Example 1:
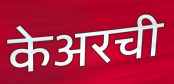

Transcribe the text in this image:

केअरची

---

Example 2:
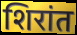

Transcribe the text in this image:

शिरांत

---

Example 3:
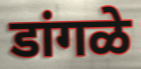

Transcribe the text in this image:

डांगळे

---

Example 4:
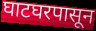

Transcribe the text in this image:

घाटघरपासून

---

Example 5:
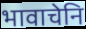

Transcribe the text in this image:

भावाचेनि